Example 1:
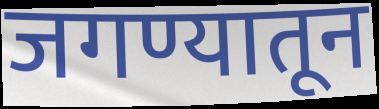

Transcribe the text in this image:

जगण्यातून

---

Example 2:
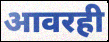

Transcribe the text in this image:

आवरही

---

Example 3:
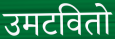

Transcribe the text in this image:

उमटवितो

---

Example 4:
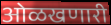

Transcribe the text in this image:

ओळखणारी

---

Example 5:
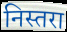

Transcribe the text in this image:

निस्तरा